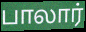
பாலார்